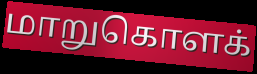
மாறுகொளக்